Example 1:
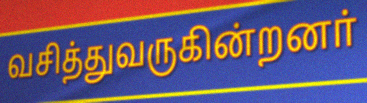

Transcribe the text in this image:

வசித்துவருகின்றனர்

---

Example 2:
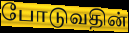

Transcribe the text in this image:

போடுவதின்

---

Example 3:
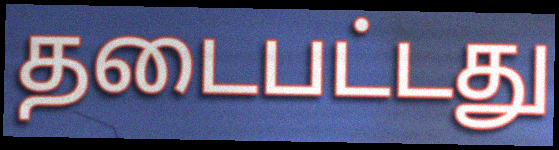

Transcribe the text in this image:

தடைபட்டது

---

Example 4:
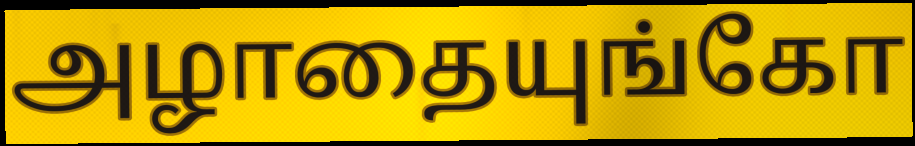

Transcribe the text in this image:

அழாதையுங்கோ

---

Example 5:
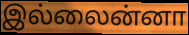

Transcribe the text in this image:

இல்லைன்னா